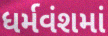
ધર્મવંશમાં